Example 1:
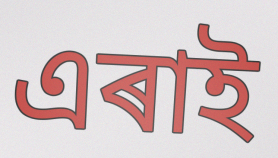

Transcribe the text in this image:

এৰাই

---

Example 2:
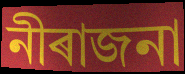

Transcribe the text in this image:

নীৰাজনা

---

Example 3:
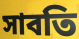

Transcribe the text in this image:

সাবতি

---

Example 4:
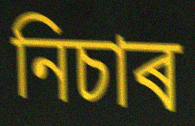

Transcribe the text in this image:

নিচাৰ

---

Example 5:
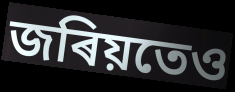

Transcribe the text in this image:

জৰিয়তেও